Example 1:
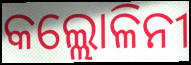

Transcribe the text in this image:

କଲ୍ଲୋଳିନୀ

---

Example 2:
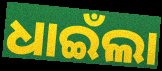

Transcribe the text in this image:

ଧାଇଁଲା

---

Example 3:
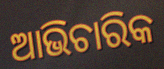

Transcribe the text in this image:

ଆଭିଚାରିକ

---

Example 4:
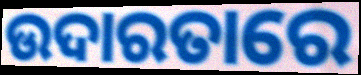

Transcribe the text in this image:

ଉଦାରତାରେ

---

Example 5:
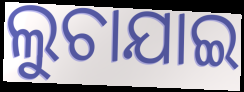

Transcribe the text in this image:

ଲୁଚାଯାଇ